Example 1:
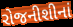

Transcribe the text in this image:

રોજનીશીનાં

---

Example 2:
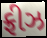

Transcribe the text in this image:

ફ્રીઝ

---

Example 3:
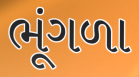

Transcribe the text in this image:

ભૂંગળા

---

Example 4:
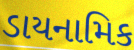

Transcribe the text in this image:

ડાયનામિક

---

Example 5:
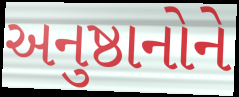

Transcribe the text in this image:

અનુષ્ઠાનોને